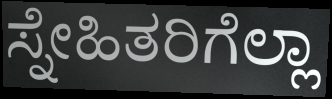
ಸ್ನೇಹಿತರಿಗೆಲ್ಲಾ